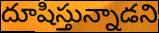
దూషిస్తున్నాడని